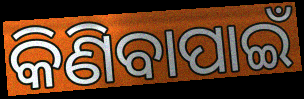
କିଣିବାପାଇଁ